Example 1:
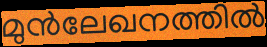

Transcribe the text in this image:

മുൻലേഖനത്തിൽ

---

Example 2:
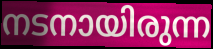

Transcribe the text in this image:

നടനായിരുന്ന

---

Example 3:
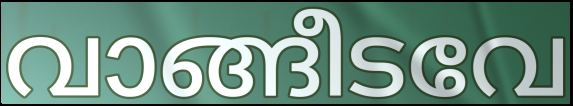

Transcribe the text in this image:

വാങ്ങീടവേ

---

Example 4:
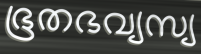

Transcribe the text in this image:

ഭൂതഭവ്യസ്യ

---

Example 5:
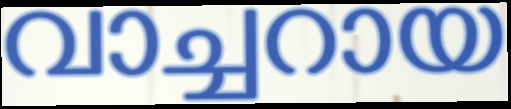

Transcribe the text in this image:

വാച്ചറായ